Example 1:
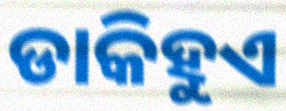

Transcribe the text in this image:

ଡାକିହୁଏ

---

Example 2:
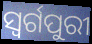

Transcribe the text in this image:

ସ୍ଵର୍ଗପୁରୀ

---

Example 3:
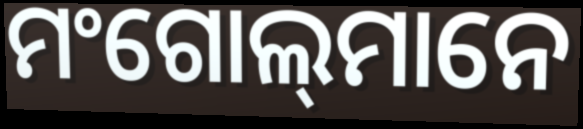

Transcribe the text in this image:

ମଂଗୋଲ୍‍ମାନେ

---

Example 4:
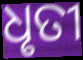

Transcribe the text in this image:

ଧୃତୀ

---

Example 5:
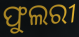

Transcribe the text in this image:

ଫୁଲରୀ